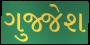
ગુજ્જેશ